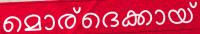
മൊര്ദെക്കായ്